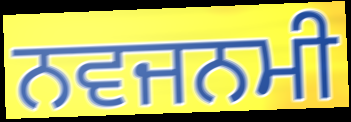
ਨਵਜਨਮੀ